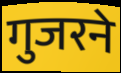
गुजरने